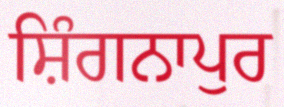
ਸ਼ਿੰਗਨਾਪੁਰ